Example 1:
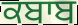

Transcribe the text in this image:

ਕਬਾਬ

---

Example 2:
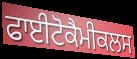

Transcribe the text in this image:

ਫਾਈਟੋਕੈਮੀਕਲਸ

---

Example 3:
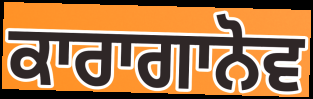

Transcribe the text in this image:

ਕਾਰਾਗਾਨੋਵ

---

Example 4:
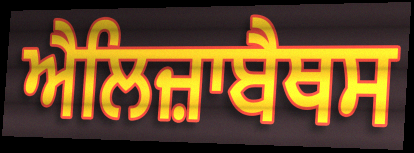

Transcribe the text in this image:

ਐਲਿਜ਼ਾਬੈਥਸ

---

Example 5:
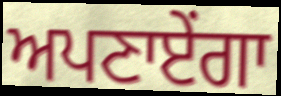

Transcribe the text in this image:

ਅਪਣਾਏਂਗਾ